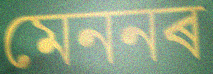
মেননৰ